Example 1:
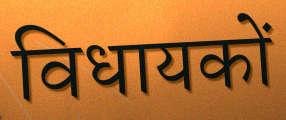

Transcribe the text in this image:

विधायकों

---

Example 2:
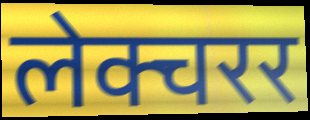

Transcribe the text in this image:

लेक्चरर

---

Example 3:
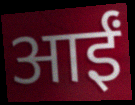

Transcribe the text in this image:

आईं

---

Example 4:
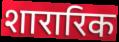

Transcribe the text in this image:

शारारिक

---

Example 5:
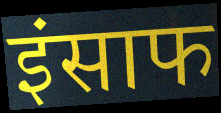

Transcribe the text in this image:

इंसाफ